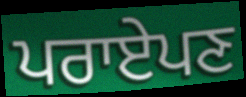
ਪਰਾਏਪਣ